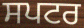
ਸਪਟਰ